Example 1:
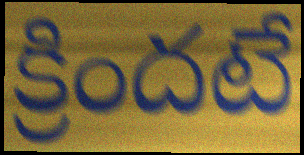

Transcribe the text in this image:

క్రిందటే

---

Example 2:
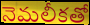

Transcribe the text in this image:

నెమలీకతో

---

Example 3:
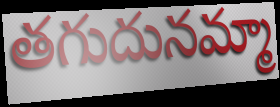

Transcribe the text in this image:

తగుదునమ్మా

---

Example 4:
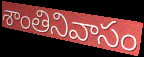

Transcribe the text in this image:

శాంతినివాసం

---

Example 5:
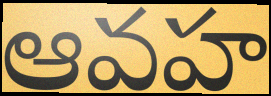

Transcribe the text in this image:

ఆవహ